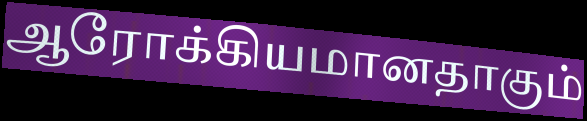
ஆரோக்கியமானதாகும்